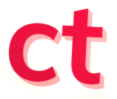
ct